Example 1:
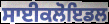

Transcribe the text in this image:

ਸਾਈਕਲੋਇਡਲ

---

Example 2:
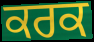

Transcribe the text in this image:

ਕਰਕ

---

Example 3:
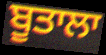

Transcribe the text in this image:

ਬੂਤਾਲਾ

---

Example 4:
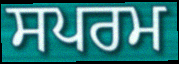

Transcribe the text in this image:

ਸਪਰਮ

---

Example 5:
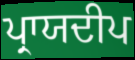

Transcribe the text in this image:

ਪ੍ਰਾਯਦੀਪ